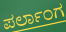
ಪರ್ಲಾಂಗ